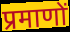
प्रमाणों